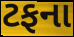
ટફના